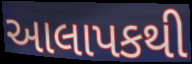
આલાપકથી